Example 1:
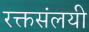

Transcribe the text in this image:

रक्तसंलयी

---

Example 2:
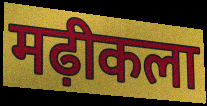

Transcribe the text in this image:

मढ़ीकला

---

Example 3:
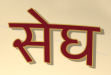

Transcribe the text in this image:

सेघ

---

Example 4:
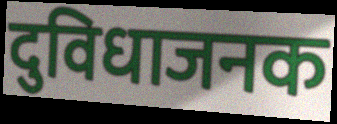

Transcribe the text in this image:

दुविधाजनक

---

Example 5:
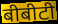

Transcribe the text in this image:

बीबीटी